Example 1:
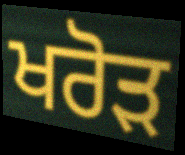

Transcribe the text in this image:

ਖਰੋੜ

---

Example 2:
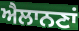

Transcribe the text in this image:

ਐਲਾਨਣਾਂ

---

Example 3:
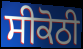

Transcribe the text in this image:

ਸੀਕੋਠੀ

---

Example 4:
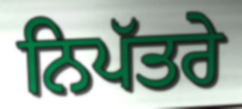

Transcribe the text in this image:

ਨਿਪੱਤਰੇ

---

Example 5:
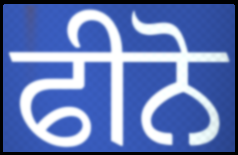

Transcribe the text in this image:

ਫੀਨੋ